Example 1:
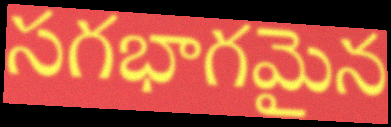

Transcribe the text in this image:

సగభాగమైన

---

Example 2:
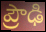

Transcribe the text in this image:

ప్రౌఢి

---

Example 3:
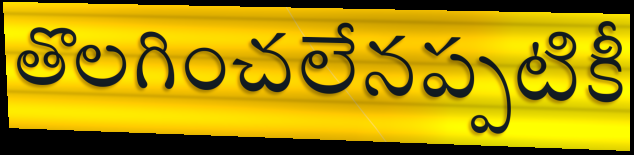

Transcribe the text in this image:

తొలగించలేనప్పటికీ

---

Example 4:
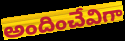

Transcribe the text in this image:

అందించేవిగా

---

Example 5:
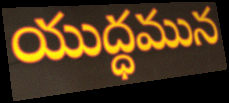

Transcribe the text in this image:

యుద్ధమున